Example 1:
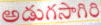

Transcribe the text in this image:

అడుగసాగిరి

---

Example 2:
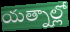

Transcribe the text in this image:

యత్నాల్లో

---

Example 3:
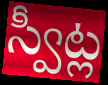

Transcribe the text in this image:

స్వీట్ల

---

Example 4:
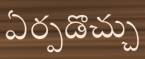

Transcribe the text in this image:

ఏర్పడొచ్చు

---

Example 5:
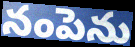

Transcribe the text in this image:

నంపెను